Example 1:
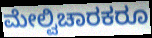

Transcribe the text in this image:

ಮೇಲ್ವಿಚಾರಕರೂ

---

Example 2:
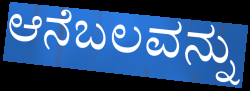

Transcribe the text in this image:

ಆನೆಬಲವನ್ನು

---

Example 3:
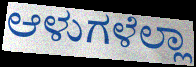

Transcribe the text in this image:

ಆಳುಗಳೆಲ್ಲಾ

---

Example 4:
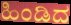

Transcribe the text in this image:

ಹಿಂಡಿದ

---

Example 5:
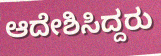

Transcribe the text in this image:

ಆದೇಶಿಸಿದ್ದರು